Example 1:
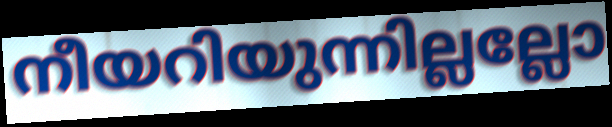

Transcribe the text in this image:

നീയറിയുന്നില്ലല്ലോ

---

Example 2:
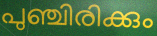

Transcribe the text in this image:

പുഞ്ചിരിക്കും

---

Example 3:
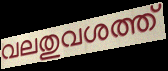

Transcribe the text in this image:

വലതുവശത്ത്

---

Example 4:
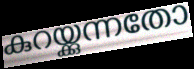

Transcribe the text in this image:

കുറയ്ക്കുന്നതോ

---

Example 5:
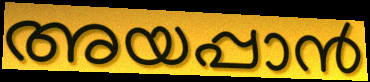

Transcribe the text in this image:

അയപ്പാൻ